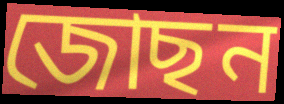
জোছন